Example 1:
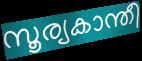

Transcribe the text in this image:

സൂര്യകാന്തീ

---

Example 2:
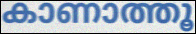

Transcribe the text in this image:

കാണാത്തൂ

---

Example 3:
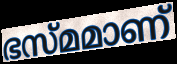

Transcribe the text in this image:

ഭസ്മമാണ്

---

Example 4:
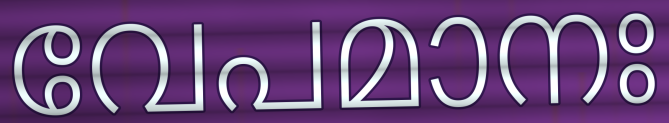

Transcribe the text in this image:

വേപമാനഃ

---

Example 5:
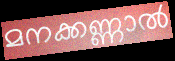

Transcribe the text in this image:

മനക്കണ്ണാൽ